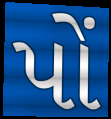
પોં